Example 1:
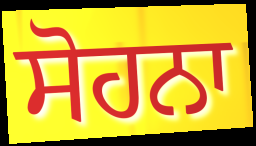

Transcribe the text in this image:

ਸੋਹਨਾ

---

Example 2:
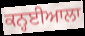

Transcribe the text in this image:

ਕਨ੍ਹਈਆਲਾ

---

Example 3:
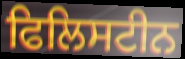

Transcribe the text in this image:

ਫਿਲਿਸਟੀਨ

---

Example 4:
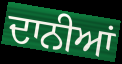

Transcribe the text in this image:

ਦਾਨੀਆਂ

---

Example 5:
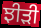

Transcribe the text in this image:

ਝੀੜੀ